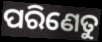
ପରିଣେତୁ